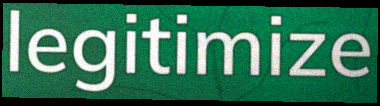
legitimize